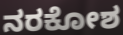
ನರಕೋಶ